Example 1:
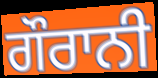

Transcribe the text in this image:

ਗੌਰਾਨੀ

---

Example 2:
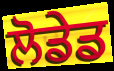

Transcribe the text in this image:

ਲੋਡੇਡ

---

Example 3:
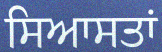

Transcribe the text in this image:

ਸਿਆਸਤਾਂ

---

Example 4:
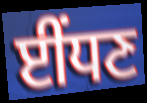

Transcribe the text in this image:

ਈਂਧਣ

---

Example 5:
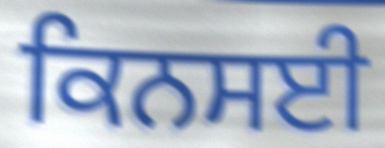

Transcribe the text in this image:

ਕਿਨਸਈ